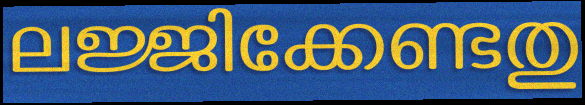
ലജ്ജിക്കേണ്ടതു